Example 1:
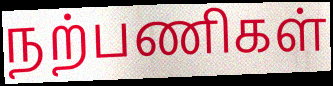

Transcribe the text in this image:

நற்பணிகள்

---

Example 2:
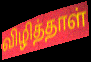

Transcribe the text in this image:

விழித்தாள்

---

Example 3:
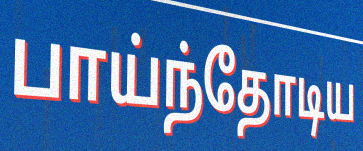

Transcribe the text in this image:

பாய்ந்தோடிய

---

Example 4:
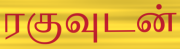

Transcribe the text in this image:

ரகுவுடன்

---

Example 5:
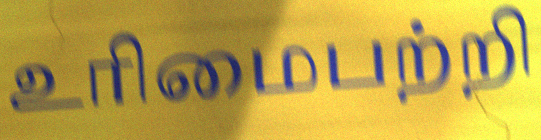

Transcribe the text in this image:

உரிமைபற்றி